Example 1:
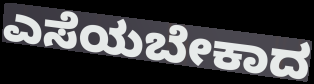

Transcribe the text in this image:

ಎಸೆಯಬೇಕಾದ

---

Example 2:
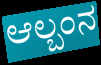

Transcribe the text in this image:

ಆಲ್ಬಂನ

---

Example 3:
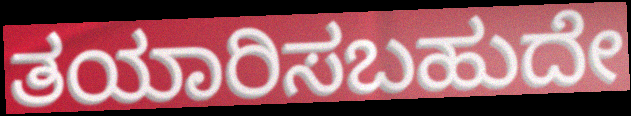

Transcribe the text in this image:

ತಯಾರಿಸಬಹುದೇ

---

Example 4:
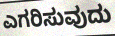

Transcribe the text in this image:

ಎಗರಿಸುವುದು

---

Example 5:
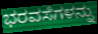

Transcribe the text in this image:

ಭರವಸೆಗಳನ್ನು